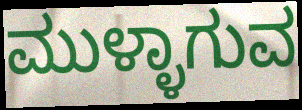
ಮುಳ್ಳಾಗುವ